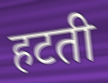
हटती